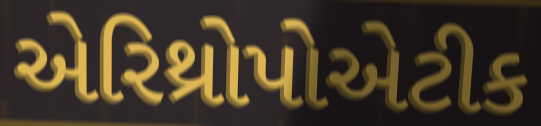
એરિથ્રોપોએટીક